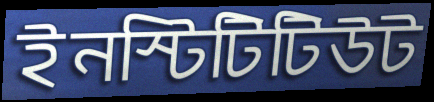
ইনস্টিটিটিউট